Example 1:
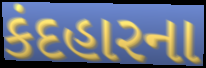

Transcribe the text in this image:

કંદહારના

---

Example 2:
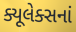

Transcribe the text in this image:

ક્યૂલેક્સનાં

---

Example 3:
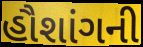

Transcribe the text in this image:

હૌશાંગની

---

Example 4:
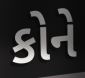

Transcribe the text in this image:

કોને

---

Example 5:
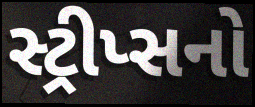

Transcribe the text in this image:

સ્ટ્રીપ્સનો